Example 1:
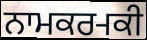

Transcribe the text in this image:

ਨਾਮਕਰ੍ਮਕੀ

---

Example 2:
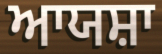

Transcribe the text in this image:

ਆਯਸ਼ਾ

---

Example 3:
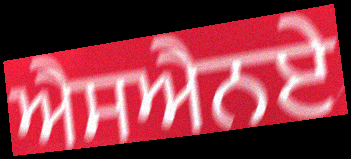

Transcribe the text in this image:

ਐਸਐਨਏ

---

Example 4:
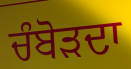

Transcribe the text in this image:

ਚੰਬੋੜਦਾ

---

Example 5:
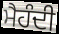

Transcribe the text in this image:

ਮੈਹੰਦੀ